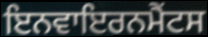
ਇਨਵਾਇਰਨਮੈਂਟਸ